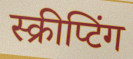
स्क्रीप्टिंग